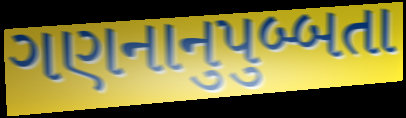
ગણનાનુપુબ્બતા